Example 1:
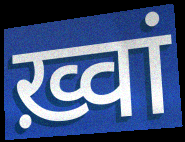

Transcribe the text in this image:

ख़्वां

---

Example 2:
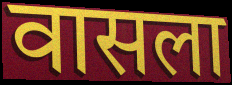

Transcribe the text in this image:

वासला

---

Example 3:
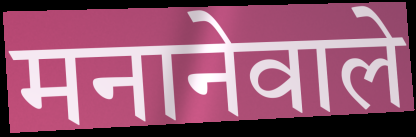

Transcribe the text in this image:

मनानेवाले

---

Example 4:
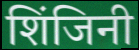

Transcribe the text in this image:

शिंजिनी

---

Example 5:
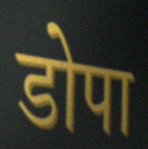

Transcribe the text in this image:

डोपा